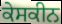
ਕੇਸਕੀਨ